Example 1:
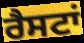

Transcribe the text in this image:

ਰੈਸਟਾਂ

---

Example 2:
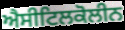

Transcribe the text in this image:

ਐਸੀਟਿਲਕੋਲੀਨ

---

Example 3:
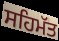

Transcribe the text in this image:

ਸਹਿਮੱਤ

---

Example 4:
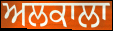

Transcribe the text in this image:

ਅਲਕਾਲਾ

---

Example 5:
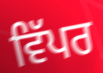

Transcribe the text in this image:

ਵਿੱਪਰ